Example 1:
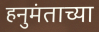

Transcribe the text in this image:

हनुमंताच्या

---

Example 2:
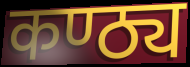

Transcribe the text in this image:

कण्ठ्य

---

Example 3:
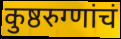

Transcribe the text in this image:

कुष्ठरुग्णांचं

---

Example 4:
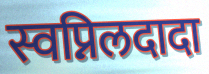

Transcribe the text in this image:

स्वप्निलदादा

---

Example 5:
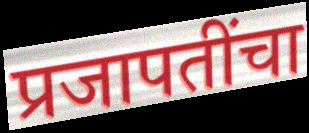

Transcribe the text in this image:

प्रजापतींचा